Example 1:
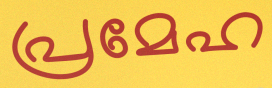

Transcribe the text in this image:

പ്രമേഹ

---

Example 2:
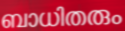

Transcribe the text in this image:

ബാധിതരും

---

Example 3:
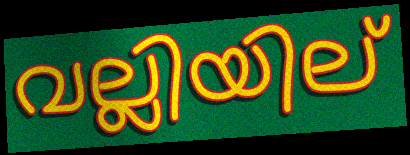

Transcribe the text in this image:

വല്ലിയില്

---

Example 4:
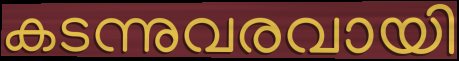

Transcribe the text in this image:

കടന്നുവരവായി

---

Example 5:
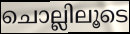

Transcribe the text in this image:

ചൊല്ലിലൂടെ